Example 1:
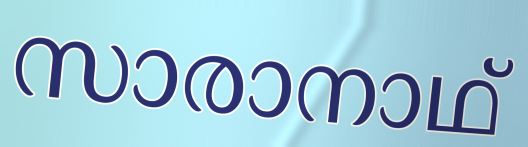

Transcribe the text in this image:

സാരാനാഥ്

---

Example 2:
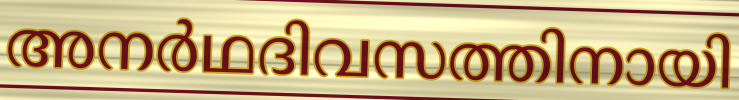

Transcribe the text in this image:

അനർഥദിവസത്തിനായി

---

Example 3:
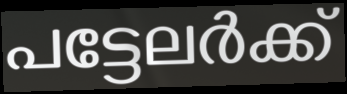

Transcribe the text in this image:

പട്ടേലർക്ക്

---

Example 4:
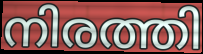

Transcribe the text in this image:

നിരത്തി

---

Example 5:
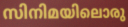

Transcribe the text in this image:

സിനിമയിലൊരു